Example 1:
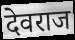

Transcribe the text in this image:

देवराज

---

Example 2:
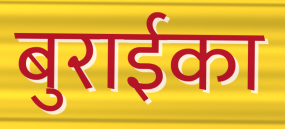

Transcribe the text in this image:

बुराईका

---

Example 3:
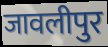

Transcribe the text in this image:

जावलीपुर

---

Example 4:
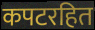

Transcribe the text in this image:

कपटरहित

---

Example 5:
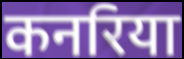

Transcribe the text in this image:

कनरिया